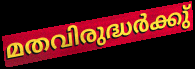
മതവിരുദ്ധർക്കു്